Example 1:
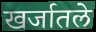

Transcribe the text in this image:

खर्जातले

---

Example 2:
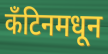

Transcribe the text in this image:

कँटिनमधून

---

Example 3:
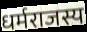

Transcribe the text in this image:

धर्मराजस्य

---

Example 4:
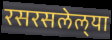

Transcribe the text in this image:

रसरसलेल्या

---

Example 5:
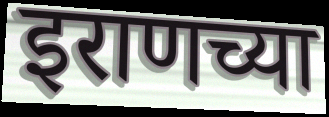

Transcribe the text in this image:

इराणच्या